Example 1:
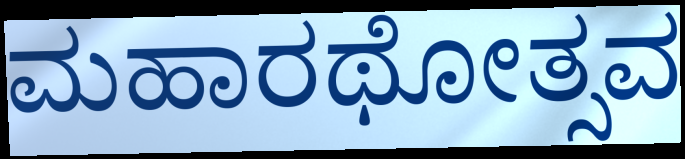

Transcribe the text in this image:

ಮಹಾರಥೋತ್ಸವ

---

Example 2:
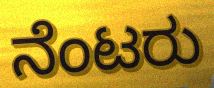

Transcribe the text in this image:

ನೆಂಟರು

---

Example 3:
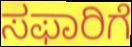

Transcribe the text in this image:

ಸಫಾರಿಗೆ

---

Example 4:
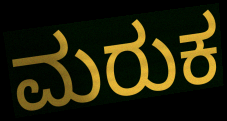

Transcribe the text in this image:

ಮರುಕ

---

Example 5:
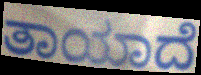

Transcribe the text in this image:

ತಾಯಾದೆ